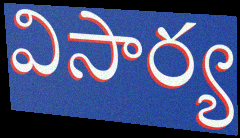
విసార్య